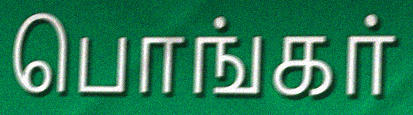
பொங்கர்